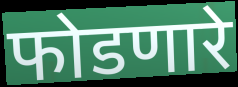
फोडणारे